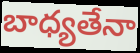
బాధ్యతేనా